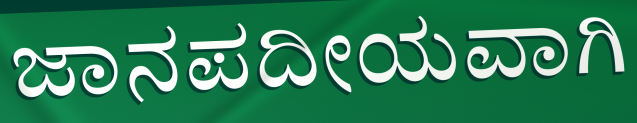
ಜಾನಪದೀಯವಾಗಿ